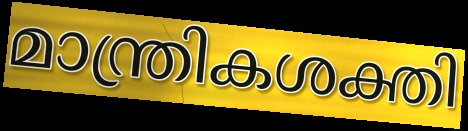
മാന്ത്രികശക്തി